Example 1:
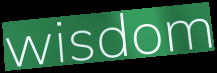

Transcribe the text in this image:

wisdom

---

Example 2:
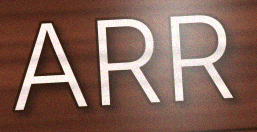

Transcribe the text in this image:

ARR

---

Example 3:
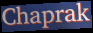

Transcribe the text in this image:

Chaprak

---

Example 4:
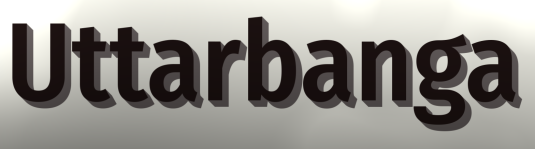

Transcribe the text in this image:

Uttarbanga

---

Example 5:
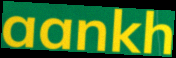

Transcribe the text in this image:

aankh